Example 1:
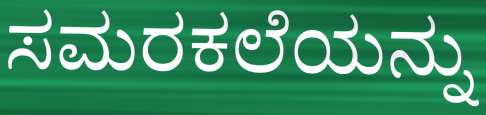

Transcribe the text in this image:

ಸಮರಕಲೆಯನ್ನು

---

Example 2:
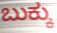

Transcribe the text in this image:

ಬುಕ್ಕು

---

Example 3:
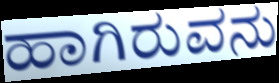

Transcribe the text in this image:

ಹಾಗಿರುವನು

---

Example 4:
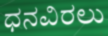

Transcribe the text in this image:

ಧನವಿರಲು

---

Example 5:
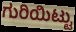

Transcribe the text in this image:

ಗುರಿಯಿಟ್ಟು